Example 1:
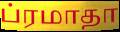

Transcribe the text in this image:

ப்ரமாதா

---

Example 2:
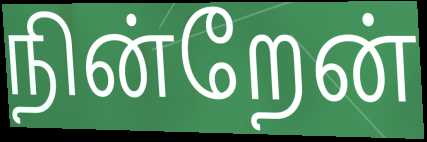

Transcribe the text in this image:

நின்றேன்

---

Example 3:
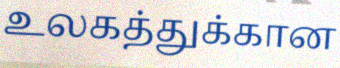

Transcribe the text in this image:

உலகத்துக்கான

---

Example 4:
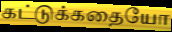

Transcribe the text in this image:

கட்டுக்கதையோ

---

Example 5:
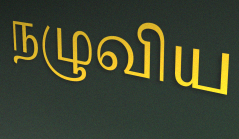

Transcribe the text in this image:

நழுவிய